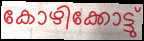
കോഴിക്കോട്ടു്